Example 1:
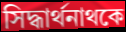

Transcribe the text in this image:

সিদ্ধার্থনাথকে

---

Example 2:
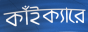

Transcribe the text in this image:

কাঁইক্যারে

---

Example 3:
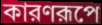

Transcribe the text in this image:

কারণরূপে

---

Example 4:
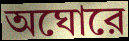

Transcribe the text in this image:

অঘোরে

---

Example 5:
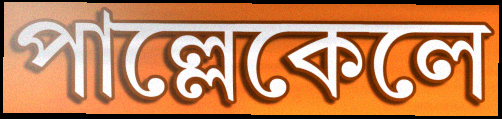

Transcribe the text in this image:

পাল্লেকেলে